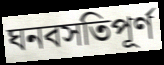
ঘনবসতিপূর্ণ